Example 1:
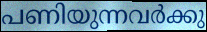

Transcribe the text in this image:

പണിയുന്നവർക്കു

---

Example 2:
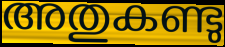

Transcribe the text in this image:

അതുകണ്ടു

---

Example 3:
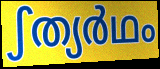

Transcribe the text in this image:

ഽത്യർഥം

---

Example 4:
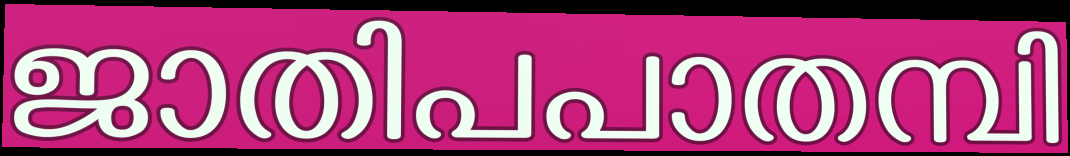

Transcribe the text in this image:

ജാതിപപാതമ്പി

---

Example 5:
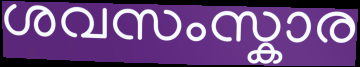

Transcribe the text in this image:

ശവസംസ്കാര